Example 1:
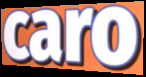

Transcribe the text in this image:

caro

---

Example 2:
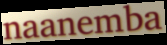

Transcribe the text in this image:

naanemba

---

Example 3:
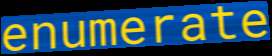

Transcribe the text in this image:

enumerate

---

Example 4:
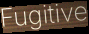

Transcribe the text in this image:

Fugitive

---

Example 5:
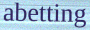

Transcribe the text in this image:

abetting